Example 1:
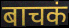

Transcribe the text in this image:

बाचकं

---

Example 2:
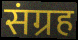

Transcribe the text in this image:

संग्रह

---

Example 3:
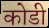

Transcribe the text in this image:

कोडी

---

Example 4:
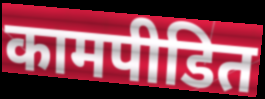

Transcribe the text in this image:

कामपीडित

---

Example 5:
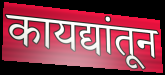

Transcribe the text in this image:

कायद्यांतून